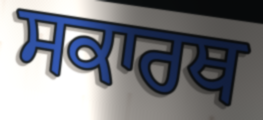
ਸਕਾਰਥ